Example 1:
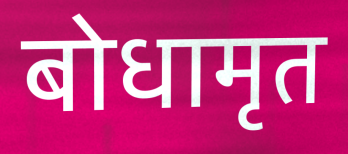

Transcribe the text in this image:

बोधामृत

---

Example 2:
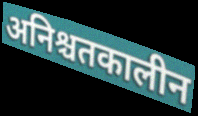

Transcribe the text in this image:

अनिश्चतकालीन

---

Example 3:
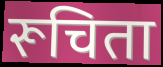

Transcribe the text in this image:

रूचिता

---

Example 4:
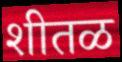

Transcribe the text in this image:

शीतळ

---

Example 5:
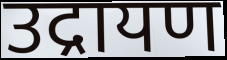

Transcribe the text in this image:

उद्रायण